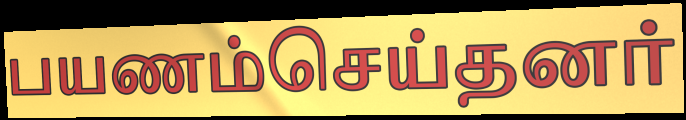
பயணம்செய்தனர்